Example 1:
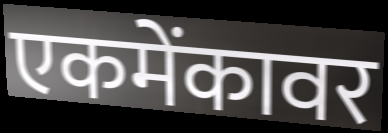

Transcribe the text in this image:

एकमेंकावर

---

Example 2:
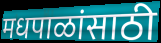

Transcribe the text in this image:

मधपाळांसाठी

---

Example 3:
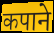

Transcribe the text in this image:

कपाने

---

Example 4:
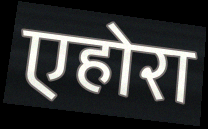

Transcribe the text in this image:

एहोरा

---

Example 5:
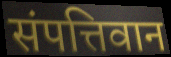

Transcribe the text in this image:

संपत्तिवान